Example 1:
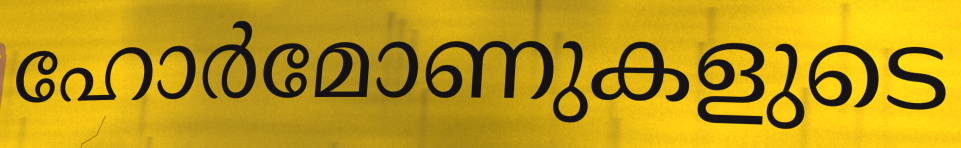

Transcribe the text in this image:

ഹോർമോണുകളുടെ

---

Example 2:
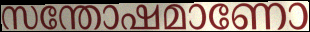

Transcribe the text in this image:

സന്തോഷമാണോ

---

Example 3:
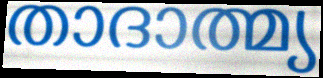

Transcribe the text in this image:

താദാത്മ്യ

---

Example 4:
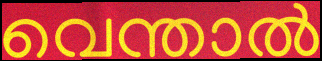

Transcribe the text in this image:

വെന്താൽ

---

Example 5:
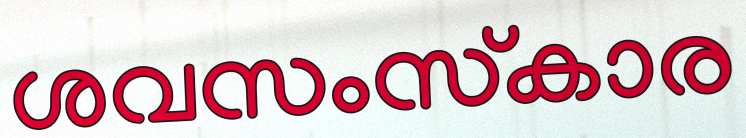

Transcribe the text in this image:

ശവസംസ്‌കാര